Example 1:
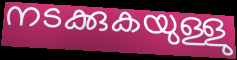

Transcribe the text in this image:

നടക്കുകയുള്ളു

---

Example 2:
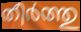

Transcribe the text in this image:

തീർത്തു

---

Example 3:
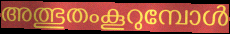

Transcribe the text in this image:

അത്ഭുതംകൂറുമ്പോൾ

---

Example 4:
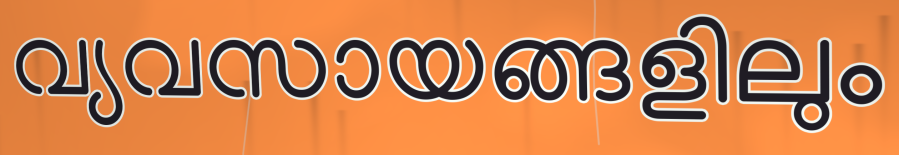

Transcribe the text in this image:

വ്യവസായങ്ങളിലും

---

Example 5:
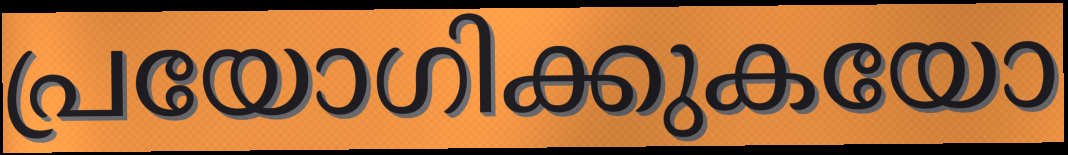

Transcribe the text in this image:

പ്രയോഗിക്കുകയോ